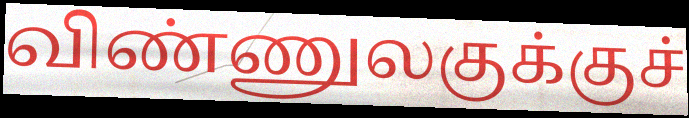
விண்ணுலகுக்குச்